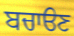
ਬਚਾੳਣ